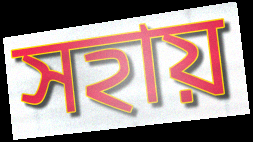
সহায়